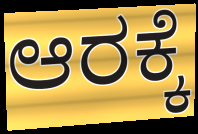
ಆರಕ್ಕೆ